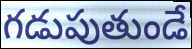
గడుపుతుండే